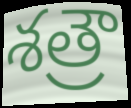
శత్రౌ